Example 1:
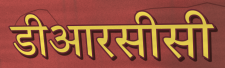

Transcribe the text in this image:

डीआरसीसी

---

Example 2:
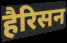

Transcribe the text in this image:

हैरिसन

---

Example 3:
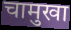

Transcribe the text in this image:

चामुखा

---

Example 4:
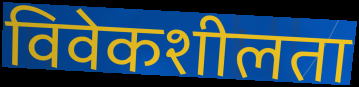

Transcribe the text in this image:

विवेकशीलता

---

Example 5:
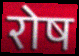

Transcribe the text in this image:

रोष